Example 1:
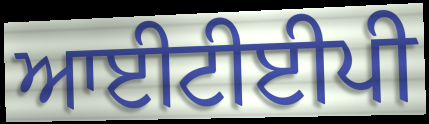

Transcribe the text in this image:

ਆਈਟੀਈਪੀ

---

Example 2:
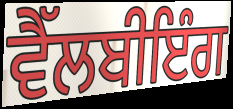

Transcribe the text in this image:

ਵੈੱਲਬੀਇੰਗ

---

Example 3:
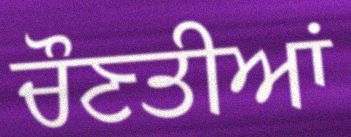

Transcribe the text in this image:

ਚੌਣਤੀਆਂ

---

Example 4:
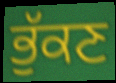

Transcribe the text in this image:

ਭੁੱਕਣ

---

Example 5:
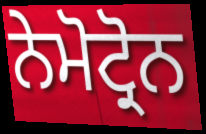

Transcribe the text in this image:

ਨੇਮੋਟ੍ਰੋਨ